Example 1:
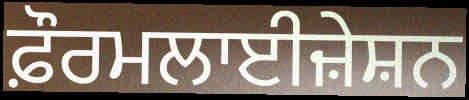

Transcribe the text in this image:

ਫ਼ੌਰਮਲਾਈਜ਼ੇਸ਼ਨ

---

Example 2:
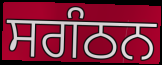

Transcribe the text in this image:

ਸਗੰਠਨ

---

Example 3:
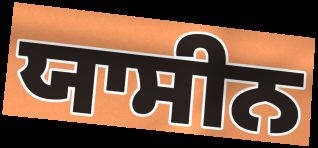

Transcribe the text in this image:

ਯਾਸੀਨ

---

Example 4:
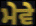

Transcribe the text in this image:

ਮੇਵੇ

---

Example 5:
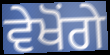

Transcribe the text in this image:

ਵੇਖੋਂਗੇ